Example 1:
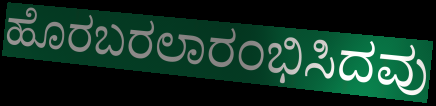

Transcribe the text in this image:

ಹೊರಬರಲಾರಂಭಿಸಿದವು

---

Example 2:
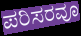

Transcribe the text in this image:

ಪರಿಸರವೂ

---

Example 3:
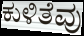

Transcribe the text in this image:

ಕುಳಿತೆವು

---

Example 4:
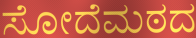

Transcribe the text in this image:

ಸೋದೆಮಠದ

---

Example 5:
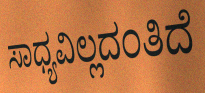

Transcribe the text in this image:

ಸಾಧ್ಯವಿಲ್ಲದಂತಿದೆ